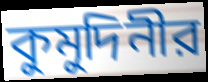
কুমুদিনীর